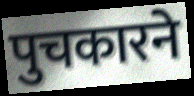
पुचकारने